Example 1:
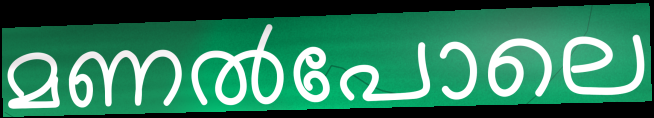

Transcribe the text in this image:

മണൽപോലെ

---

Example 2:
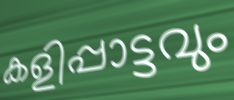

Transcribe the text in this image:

കളിപ്പാട്ടവും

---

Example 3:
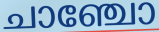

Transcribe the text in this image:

ചാഞ്ചോ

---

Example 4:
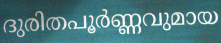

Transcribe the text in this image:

ദുരിതപൂർണ്ണവുമായ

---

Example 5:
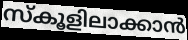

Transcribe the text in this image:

സ്കൂളിലാക്കാൻ